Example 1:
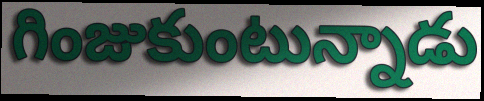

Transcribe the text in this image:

గింజుకుంటున్నాడు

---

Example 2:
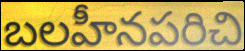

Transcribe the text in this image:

బలహీనపరిచి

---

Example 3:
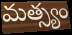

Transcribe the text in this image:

మత్స్యం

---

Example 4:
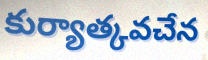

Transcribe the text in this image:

కుర్యాత్కవచేన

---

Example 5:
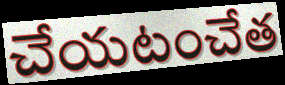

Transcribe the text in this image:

చేయటంచేత